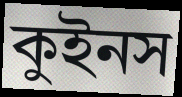
কুইনস